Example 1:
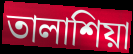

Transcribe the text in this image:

তালাশিয়া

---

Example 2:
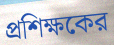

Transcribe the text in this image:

প্রশিক্ষকের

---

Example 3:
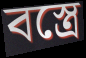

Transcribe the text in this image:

বস্ত্রে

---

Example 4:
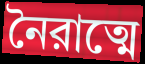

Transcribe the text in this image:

নৈরাত্মে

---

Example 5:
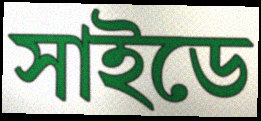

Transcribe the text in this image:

সাইডে